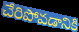
చేరిపోవడానికి